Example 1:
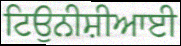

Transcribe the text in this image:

ਟਿਉਨੀਸ਼ੀਆਈ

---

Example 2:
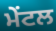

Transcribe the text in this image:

ਮੇਂਟਲ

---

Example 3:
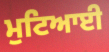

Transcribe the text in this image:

ਮੁਟਿਆਈ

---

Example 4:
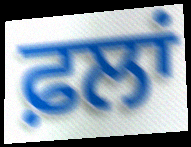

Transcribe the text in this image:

ਫ਼ਲਾਂ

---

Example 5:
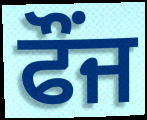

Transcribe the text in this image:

ਫੌਂਜ